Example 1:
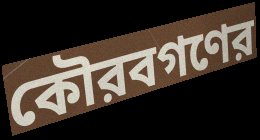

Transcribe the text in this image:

কৌরবগণের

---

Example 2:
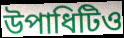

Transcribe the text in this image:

উপাধিটিও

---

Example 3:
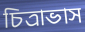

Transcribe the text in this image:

চিত্রাভাস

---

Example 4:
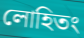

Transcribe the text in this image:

লোহিতং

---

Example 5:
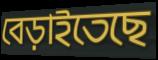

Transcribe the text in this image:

বেড়াইতেছে